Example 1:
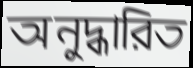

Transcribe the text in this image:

অনুদ্ধারিত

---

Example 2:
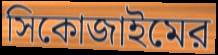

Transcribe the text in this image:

সিকোজাইমের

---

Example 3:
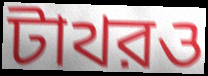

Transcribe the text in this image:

টাথরও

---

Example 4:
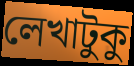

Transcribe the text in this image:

লেখাটুকু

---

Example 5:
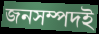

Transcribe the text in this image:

জনসম্পদই